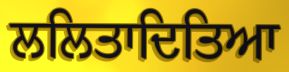
ਲਲਿਤਾਦਿਤਿਆ